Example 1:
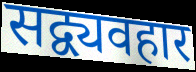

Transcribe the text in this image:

सद्व्यवहार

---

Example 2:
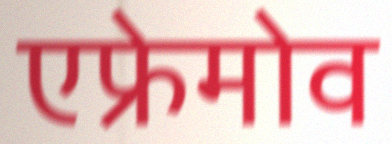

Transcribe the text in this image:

एफ्रेमोव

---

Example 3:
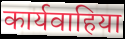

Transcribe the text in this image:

कार्यवाहिया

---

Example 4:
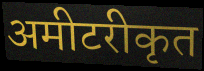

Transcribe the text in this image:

अमीटरीकृत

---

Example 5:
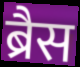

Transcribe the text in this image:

ब्रैस